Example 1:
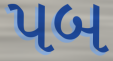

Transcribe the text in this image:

પબ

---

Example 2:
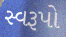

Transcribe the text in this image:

સ્વરૂપો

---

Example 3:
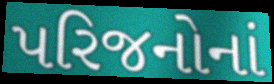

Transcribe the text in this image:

પરિજનોનાં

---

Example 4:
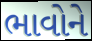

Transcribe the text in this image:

ભાવોને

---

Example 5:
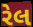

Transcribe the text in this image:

રેલ